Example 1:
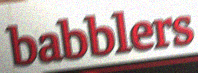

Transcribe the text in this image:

babblers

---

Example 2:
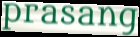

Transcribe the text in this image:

prasang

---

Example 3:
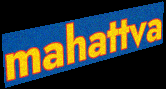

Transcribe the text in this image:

mahattva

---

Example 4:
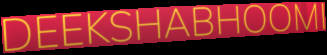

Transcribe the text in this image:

DEEKSHABHOOMI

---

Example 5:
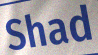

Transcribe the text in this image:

Shad